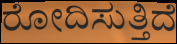
ರೋದಿಸುತ್ತಿದೆ